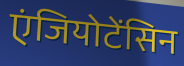
एंजियोटेंसिन